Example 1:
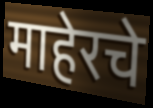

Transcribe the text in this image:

माहेरचे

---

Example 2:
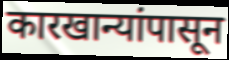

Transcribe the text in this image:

कारखान्यांपासून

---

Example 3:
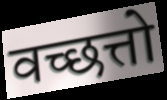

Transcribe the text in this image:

वच्छत्तो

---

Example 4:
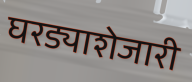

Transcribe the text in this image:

घरड्याशेजारी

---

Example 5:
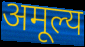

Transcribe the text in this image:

अमूल्य